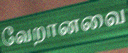
வேறானவை